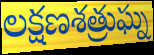
లక్షణశత్రుఘ్న